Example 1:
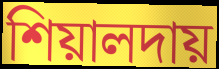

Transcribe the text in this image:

শিয়ালদায়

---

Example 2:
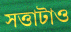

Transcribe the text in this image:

সত্তাটাও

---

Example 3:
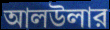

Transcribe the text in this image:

আলউলার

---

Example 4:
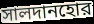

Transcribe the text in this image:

সালদানহোর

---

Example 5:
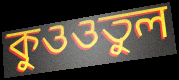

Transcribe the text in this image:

কুওওতুল